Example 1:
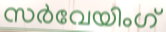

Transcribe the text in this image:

സർവേയിംഗ്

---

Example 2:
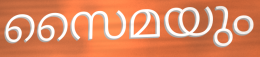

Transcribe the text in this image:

സൈമയും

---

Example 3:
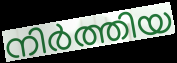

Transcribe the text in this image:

നിർത്തിയ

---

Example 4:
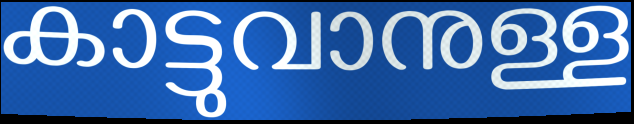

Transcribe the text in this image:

കാട്ടുവാനുള്ള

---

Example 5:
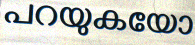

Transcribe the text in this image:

പറയുകയോ